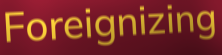
Foreignizing